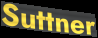
Suttner